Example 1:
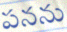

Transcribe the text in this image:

పనను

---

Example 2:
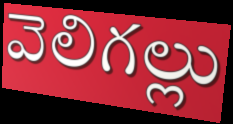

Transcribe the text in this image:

వెలిగల్లు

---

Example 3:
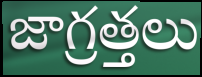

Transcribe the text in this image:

జాగ్రత్తలు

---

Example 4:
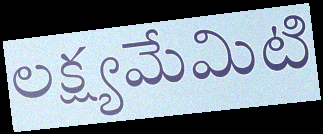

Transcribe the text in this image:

లక్ష్యమేమిటి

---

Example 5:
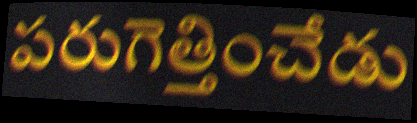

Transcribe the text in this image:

పరుగెత్తించేడు